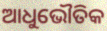
ଆଧୁଭୌତିକ